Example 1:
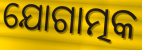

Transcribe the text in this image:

ଯୋଗାତ୍ମକ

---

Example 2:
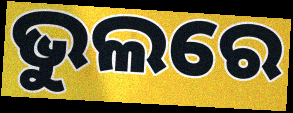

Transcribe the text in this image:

ଭୁଲରେ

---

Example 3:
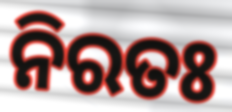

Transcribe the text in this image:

ନିରତଃ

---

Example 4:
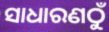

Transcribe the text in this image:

ସାଧାରଣଠୁଁ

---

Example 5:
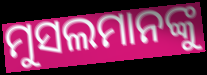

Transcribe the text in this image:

ମୁସଲମାନଙ୍କୁ